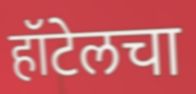
हॉटेलचा